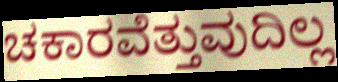
ಚಕಾರವೆತ್ತುವುದಿಲ್ಲ